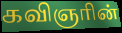
கவிஞரின்